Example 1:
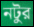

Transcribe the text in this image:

নটুর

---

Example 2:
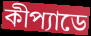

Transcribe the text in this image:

কীপ্যাডে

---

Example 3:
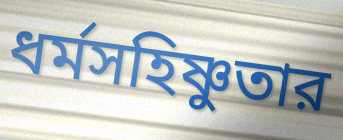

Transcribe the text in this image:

ধর্মসহিষ্ণুতার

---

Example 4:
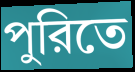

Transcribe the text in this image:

পুরিতে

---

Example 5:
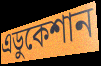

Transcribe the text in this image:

এডুকেশান